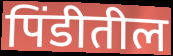
पिंडीतील